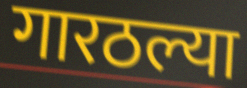
गारठल्या